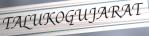
TALUKOGUJARAT